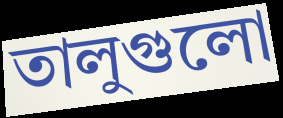
তালুগুলো